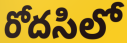
రోదసిలో